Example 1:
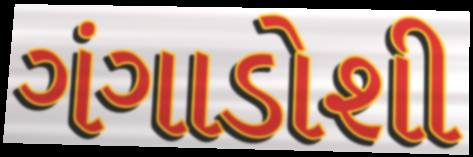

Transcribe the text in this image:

ગંગાડોશી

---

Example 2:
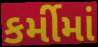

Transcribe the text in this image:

કર્મીમાં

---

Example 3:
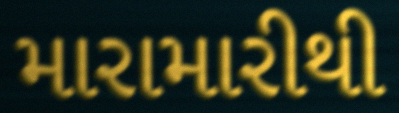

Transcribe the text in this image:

મારામારીથી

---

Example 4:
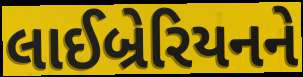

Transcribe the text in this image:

લાઈબ્રેરિયનને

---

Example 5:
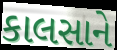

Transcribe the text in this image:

કાલસાને